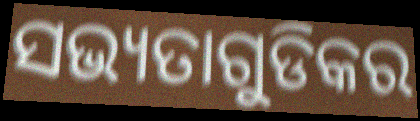
ସଭ୍ୟତାଗୁଡିକର